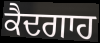
ਕੈਦਗਾਹ